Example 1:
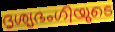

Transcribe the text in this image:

ദൃശ്യഭംഗിയുടെ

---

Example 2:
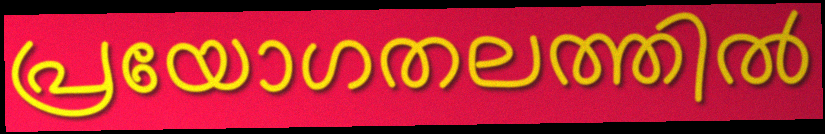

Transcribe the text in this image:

പ്രയോഗതലത്തിൽ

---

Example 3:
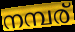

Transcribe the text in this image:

നമ്പര്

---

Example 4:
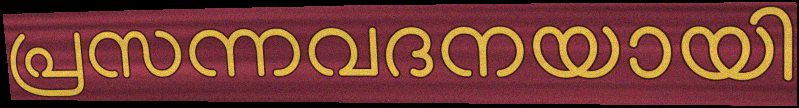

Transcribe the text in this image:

പ്രസന്നവദനയായി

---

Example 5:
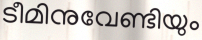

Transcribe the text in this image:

ടീമിനുവേണ്ടിയും